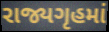
રાજ્યગૃહમાં